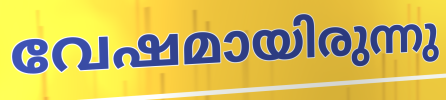
വേഷമായിരുന്നു